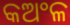
କଅଂଳ